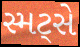
સ્મટ્સે